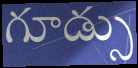
గూడ్సు